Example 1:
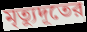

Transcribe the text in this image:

মৃত্যুদূতের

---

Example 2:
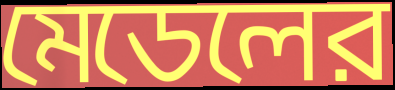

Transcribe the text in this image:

মেডেলের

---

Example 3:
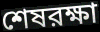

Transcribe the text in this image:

শেষরক্ষা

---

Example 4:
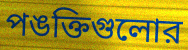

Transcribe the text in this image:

পঙক্তিগুলোর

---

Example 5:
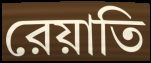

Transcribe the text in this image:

রেয়াতি